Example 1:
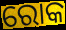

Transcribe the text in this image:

ରୋକ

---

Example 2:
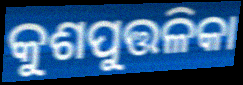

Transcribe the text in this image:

କୁଶପୁତ୍ତଳିକା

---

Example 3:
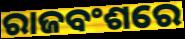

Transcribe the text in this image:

ରାଜବଂଶରେ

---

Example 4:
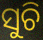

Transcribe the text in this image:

ସୁଚି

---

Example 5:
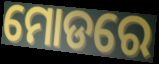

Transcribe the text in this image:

ମୋଡରେ